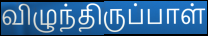
விழுந்திருப்பாள்